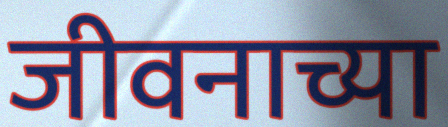
जीवनाच्या